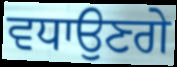
ਵਧਾਉਣਗੇ